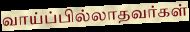
வாய்ப்பில்லாதவர்கள்